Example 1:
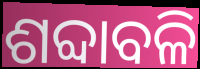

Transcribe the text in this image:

ଶବ୍ଦାବଳି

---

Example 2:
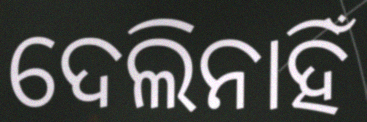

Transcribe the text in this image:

ଦେଲିନାହିଁ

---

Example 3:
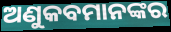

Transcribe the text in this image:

ଅଣୁକବମାନଙ୍କର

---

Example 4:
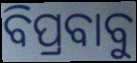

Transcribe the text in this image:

ବିପ୍ରବାବୁ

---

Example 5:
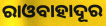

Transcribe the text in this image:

ରାଓବାହାଦୂର